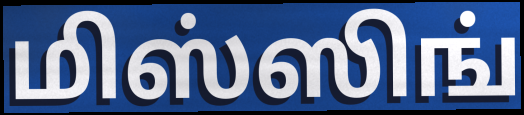
மிஸ்ஸிங்